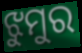
ଝୁମୁର